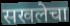
सखलेचा